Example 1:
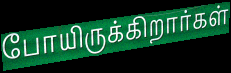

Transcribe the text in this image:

போயிருக்கிறார்கள்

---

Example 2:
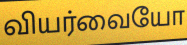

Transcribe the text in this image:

வியர்வையோ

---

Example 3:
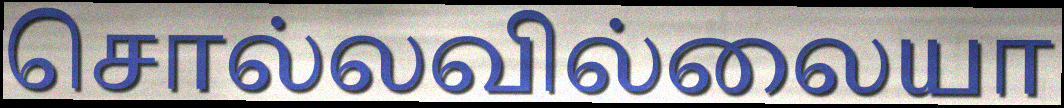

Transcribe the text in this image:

சொல்லவில்லையா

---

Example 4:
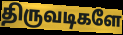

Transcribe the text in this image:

திருவடிகளே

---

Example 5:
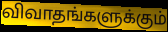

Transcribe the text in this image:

விவாதங்களுக்கும்